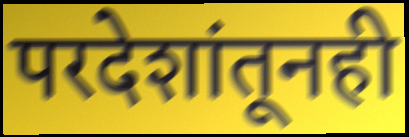
परदेशांतूनही